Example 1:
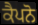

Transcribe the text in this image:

ਕੈਪਨੋ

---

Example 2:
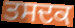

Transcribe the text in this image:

ਤਸਦਕ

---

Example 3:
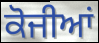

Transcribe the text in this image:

ਕੋਜੀਆਂ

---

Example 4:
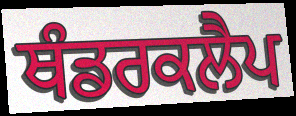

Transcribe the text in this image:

ਥੰਡਰਕਲੈਪ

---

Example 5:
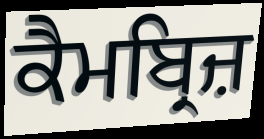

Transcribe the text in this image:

ਕੈਮਬ੍ਰਿਜ਼